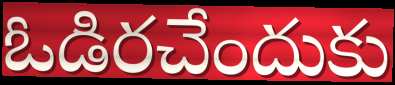
ఓడిరచేందుకు